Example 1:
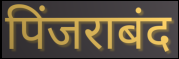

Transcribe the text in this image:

पिंजराबंद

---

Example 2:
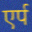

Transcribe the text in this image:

एर्प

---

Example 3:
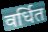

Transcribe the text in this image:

वर्धित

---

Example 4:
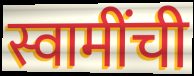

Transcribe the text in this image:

स्वामींची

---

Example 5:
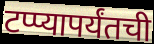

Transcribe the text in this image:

टप्प्यापर्यंतची